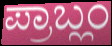
ಪ್ರಾಬ್ಲಂ